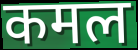
कमल